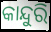
କାନ୍ଦୁରି